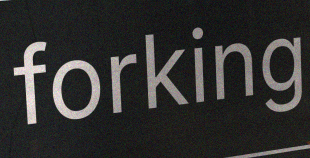
forking